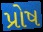
પ્રોષ